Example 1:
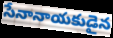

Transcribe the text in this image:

సేనానాయకుడైన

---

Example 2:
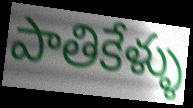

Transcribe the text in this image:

పాతికేళ్ళు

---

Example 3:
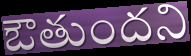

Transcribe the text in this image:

ఔతుందని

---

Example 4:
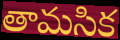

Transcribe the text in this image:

తామసిక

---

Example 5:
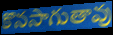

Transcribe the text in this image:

కొనసాగుతావు